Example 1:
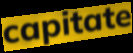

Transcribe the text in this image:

capitate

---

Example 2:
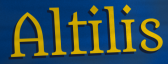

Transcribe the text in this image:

Altilis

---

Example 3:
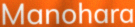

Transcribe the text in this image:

Manohara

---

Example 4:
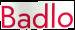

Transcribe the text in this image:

Badlo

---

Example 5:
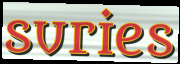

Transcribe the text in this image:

suries